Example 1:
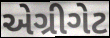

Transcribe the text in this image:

એગ્રીગેટ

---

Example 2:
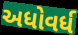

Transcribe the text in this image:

અધોવર્ધ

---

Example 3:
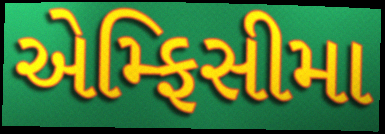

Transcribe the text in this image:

એમ્ફિસીમા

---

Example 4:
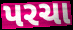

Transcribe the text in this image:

પરચા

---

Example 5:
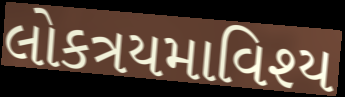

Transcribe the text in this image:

લોકત્રયમાવિશ્ય